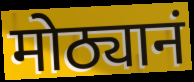
मोठ्यानं